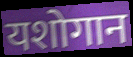
यशोगान